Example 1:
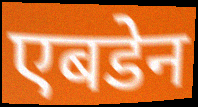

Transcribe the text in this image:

एबडेन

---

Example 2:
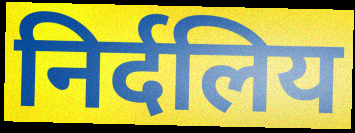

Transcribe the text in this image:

निर्दलिय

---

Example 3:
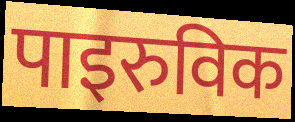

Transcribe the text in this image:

पाइरुविक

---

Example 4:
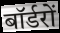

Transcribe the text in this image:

बॉर्डरों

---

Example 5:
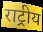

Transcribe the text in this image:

राट्रीय